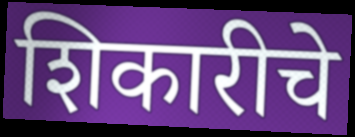
शिकारीचे